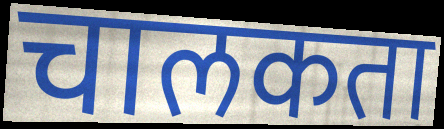
चालकता